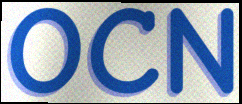
OCN